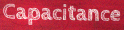
Capacitance